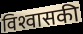
विश्वासकी